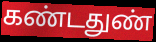
கண்டதுண்